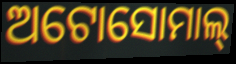
ଅଟୋସୋମାଲ୍